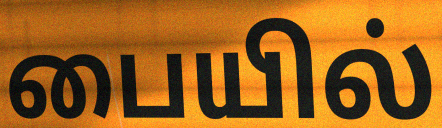
பையில்